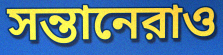
সন্তানেরাও